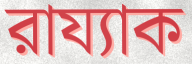
রায্যাক